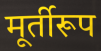
मूर्तीरूप